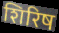
शिरिष